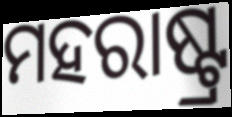
ମହରାଷ୍ଟ୍ର